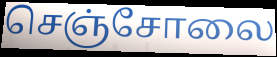
செஞ்சோலை